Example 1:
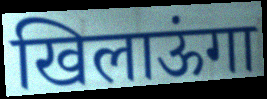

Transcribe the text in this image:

खिलाऊंगा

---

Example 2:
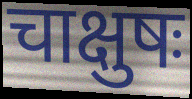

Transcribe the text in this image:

चाक्षुषः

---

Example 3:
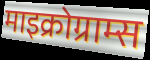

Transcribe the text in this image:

माइक्रोग्राम्स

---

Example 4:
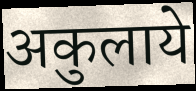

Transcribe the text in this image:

अकुलाये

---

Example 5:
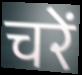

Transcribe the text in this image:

चरें